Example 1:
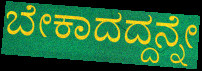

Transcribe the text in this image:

ಬೇಕಾದದ್ದನ್ನೇ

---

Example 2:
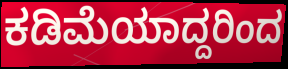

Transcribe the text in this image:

ಕಡಿಮೆಯಾದ್ದರಿಂದ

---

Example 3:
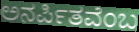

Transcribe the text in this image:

ಅನರ್ಪಿತವೆಂಬ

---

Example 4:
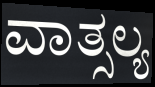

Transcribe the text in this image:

ವಾತ್ಸಲ್ಯ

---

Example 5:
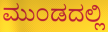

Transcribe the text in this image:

ಮುಂಡದಲ್ಲಿ